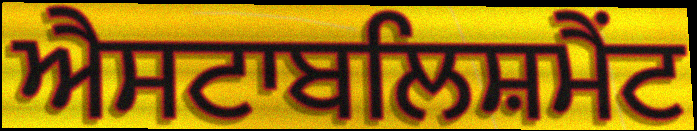
ਐਸਟਾਬਲਿਸ਼ਮੈਂਟ